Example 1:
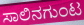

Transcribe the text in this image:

ಸಾಲಿನಗುಂಟ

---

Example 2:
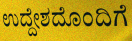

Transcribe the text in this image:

ಉದ್ದೇಶದೊಂದಿಗೆ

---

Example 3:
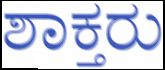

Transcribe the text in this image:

ಶಾಕ್ತರು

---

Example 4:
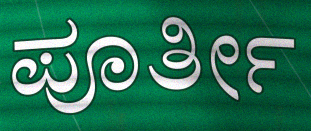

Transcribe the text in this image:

ಪೂರ್ತೀ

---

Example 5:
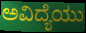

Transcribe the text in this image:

ಅವಿದ್ಯೆಯು